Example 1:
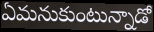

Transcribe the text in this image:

ఏమనుకుంటున్నాడో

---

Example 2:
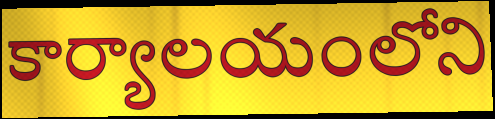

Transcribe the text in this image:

కార్యాలయంలోని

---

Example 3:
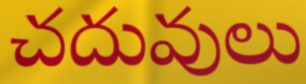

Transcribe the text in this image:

చదువులు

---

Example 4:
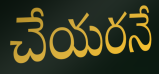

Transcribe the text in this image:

చేయరనే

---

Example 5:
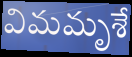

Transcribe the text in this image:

విమమృశే